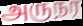
அருநர